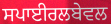
ਸਪਾਈਰਲਬੇਵਲ